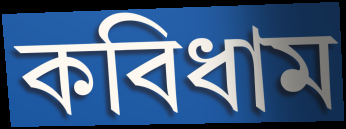
কবিধাম